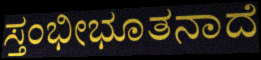
ಸ್ತಂಭೀಭೂತನಾದೆ